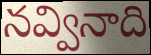
నవ్వినాది